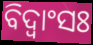
ବିଦ୍ଵାଂସଃ